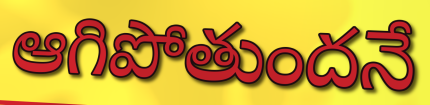
ఆగిపోతుందనే